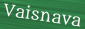
Vaisnava